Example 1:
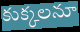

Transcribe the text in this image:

కుక్కలనూ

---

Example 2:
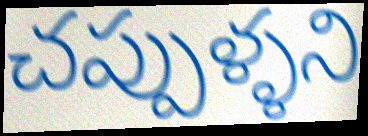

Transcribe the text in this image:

చప్పుళ్ళని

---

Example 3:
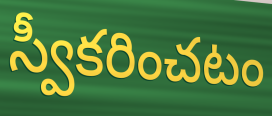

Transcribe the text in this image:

స్వీకరించటం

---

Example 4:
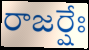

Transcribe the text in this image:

రాజర్షేః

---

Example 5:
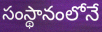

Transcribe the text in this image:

సంస్థానంలోనే